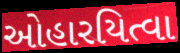
ઓહારયિત્વા